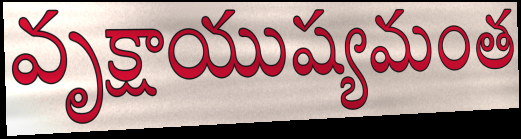
వృక్షాయుష్యమంత